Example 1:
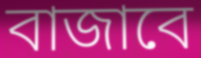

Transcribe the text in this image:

বাজাবে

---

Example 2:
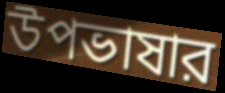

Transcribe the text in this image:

উপভাষার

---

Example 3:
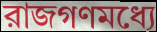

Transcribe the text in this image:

রাজগণমধ্যে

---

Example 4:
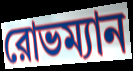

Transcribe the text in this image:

রোভম্যান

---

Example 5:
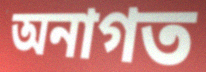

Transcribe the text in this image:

অনাগত